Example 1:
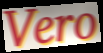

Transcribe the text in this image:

Vero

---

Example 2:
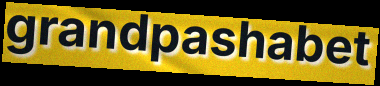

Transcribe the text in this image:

grandpashabet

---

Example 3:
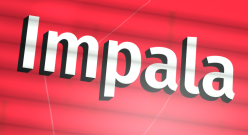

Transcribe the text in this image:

Impala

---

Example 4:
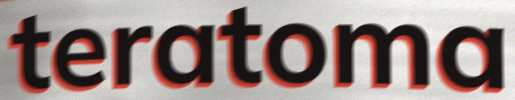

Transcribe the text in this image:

teratoma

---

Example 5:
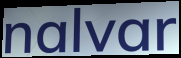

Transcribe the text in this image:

nalvar